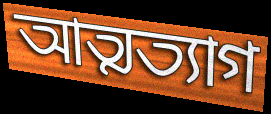
আত্মত্যাগ